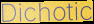
Dichotic